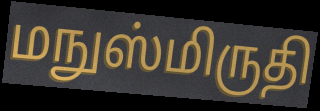
மநுஸ்மிருதி